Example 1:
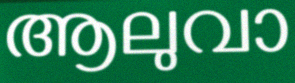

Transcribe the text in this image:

ആലുവാ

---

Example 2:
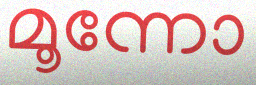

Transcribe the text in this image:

മൂന്നോ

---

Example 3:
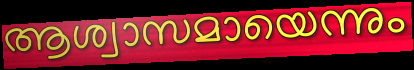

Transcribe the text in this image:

ആശ്വാസമായെന്നും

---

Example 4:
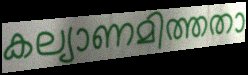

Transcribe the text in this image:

കല്യാണമിത്തതാ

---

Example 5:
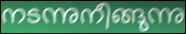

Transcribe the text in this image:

നടന്നുനീങ്ങുന്നു